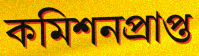
কমিশনপ্রাপ্ত